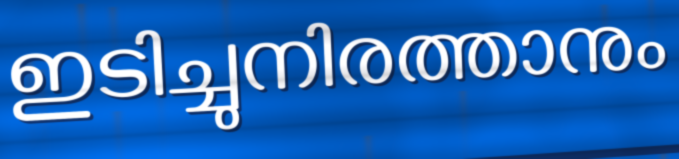
ഇടിച്ചുനിരത്താനും